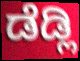
ಡೆಡ್ಲಿ